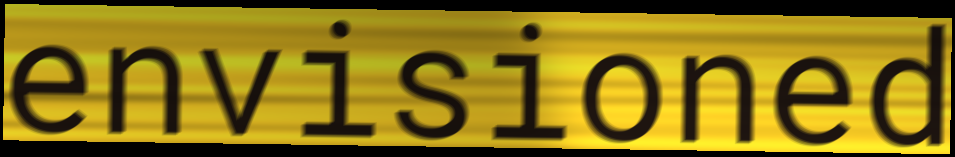
envisioned